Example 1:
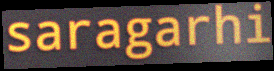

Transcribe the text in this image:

saragarhi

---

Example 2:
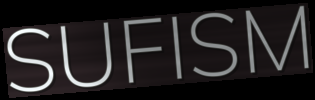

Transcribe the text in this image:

SUFISM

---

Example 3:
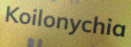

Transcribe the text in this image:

Koilonychia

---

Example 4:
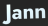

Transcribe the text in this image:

Jann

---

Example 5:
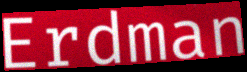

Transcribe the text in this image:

Erdman